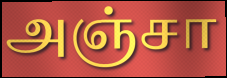
அஞ்சா